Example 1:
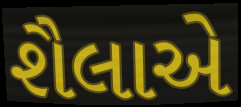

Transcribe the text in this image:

શૈલાએ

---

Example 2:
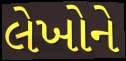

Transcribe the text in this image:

લેખોને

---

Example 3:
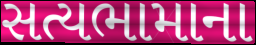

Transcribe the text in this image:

સત્યભામાના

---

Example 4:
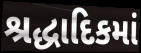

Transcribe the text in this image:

શ્રદ્ધાદિકમાં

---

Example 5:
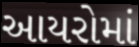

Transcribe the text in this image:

આયરોમાં